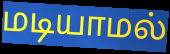
மடியாமல்